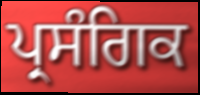
ਪ੍ਰਸੰਗਿਕ